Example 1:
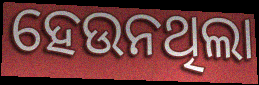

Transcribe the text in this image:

ହେଉନଥିଲା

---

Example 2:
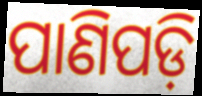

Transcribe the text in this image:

ପାଣିପଡ଼ି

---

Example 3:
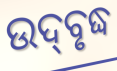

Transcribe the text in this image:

ଉଦ୍‌ବୃଦ୍ଧ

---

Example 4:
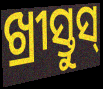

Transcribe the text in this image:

ଖ୍ରୀସ୍ତୁସ୍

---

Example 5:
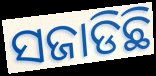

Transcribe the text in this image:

ସଜାଡିଛି